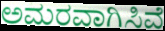
ಅಮರವಾಗಿಸಿವೆ